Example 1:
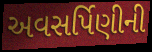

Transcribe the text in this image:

અવસર્પિણીની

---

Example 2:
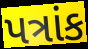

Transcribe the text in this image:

પત્રાંક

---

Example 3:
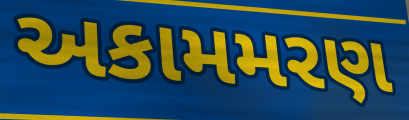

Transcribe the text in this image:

અકામમરણ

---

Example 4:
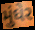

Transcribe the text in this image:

મુંઘેર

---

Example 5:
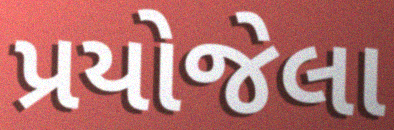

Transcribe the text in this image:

પ્રયોજેલા